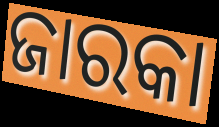
ଜାରକା